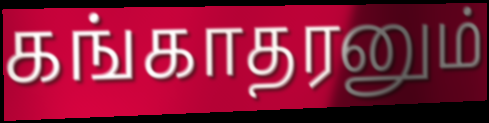
கங்காதரனும்